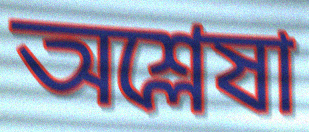
অশ্লেষা